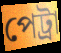
পেট্রা